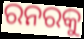
ରନରକୁ